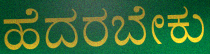
ಹೆದರಬೇಕು